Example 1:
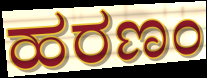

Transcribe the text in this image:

ಹರಣಂ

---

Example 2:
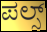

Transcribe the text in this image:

ಪಲ್ಸ್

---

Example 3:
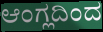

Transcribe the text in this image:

ಆಂಗ್ಲದಿಂದ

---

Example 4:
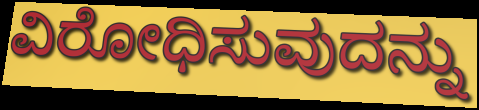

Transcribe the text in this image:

ವಿರೋಧಿಸುವುದನ್ನು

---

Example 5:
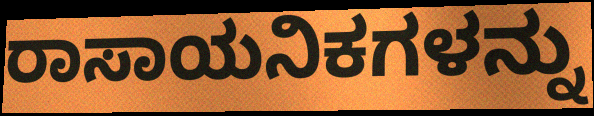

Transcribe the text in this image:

ರಾಸಾಯನಿಕಗಳನ್ನು